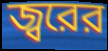
জ্বরের